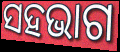
ସହଭାଗ